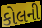
કોલની